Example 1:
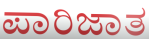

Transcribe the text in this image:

ಪಾರಿಜಾತ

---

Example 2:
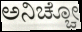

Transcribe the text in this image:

ಅನಿಚ್ಚೋ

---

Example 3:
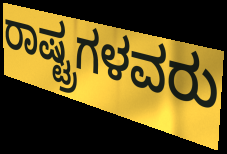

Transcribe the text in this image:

ರಾಷ್ಟ್ರಗಳವರು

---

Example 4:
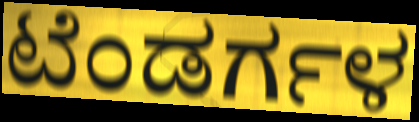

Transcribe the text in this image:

ಟೆಂಡರ್ಗಳ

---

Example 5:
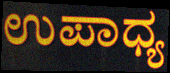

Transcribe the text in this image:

ಉಪಾಧ್ಯ